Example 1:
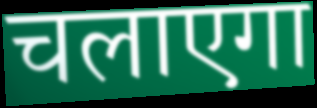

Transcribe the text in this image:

चलाएगा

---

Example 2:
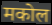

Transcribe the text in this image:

मकोल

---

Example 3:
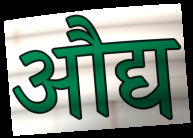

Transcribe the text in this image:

औद्य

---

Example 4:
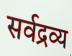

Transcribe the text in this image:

सर्वद्रव्य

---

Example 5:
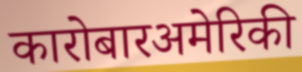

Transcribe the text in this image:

कारोबारअमेरिकी